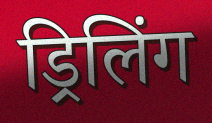
ड्रिलिंग